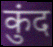
कुंद